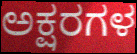
ಅಕ್ಷರಗಳ